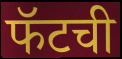
फॅटची